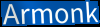
Armonk